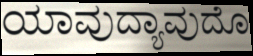
ಯಾವುದ್ಯಾವುದೊ